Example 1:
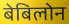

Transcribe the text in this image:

बेबिलोन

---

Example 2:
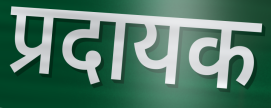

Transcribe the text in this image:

प्रदायक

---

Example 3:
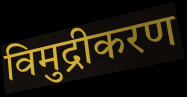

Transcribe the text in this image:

विमुद्रीकरण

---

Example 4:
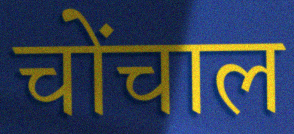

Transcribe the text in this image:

चोंचाल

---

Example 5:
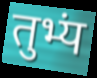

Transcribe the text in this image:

तुभ्यं